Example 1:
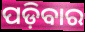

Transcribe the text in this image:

ପଡ଼ିବାର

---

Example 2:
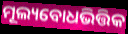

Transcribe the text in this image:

ମୂଲ୍ୟବୋଧଭିତ୍ତିକ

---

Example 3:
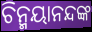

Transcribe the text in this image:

ଚିନ୍ମୟାନନ୍ଦଙ୍କ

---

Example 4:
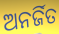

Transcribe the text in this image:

ଅନର୍ଜିତ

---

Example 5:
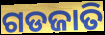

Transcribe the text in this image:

ଗଡଜାତି